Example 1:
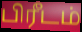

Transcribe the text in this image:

பிரீடம்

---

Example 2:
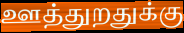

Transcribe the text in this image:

ஊத்துறதுக்கு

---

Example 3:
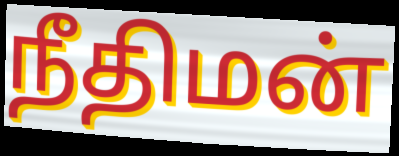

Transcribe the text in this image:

நீதிமன்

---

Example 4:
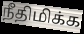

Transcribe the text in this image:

நீதிமிக்க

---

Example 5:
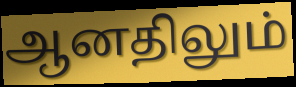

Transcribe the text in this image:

ஆனதிலும்